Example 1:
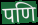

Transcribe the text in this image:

पणि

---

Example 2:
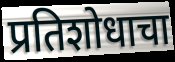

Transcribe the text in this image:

प्रतिशोधाचा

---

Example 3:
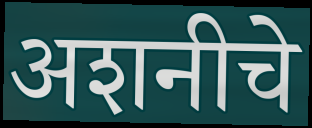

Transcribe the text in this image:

अशनीचे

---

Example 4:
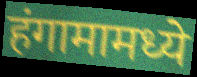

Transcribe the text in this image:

हंगामामध्ये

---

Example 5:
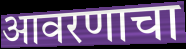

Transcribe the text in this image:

आवरणाचा